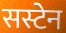
सस्टेन